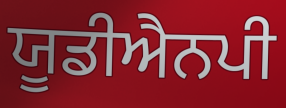
ਯੂਡੀਐਨਪੀ